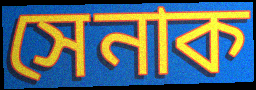
সেনাক